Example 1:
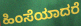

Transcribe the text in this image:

ಹಿಂಸೆಯಾದರೆ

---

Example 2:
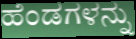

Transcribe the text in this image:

ಹೆಂಡಗಳನ್ನು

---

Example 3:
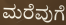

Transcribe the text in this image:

ಮರೆವುಗೆ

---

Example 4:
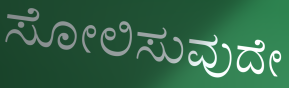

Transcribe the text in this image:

ಸೋಲಿಸುವುದೇ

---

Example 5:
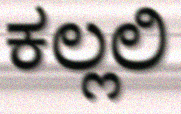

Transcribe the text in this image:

ಕಲ್ಲಲಿ